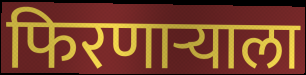
फिरणाऱ्याला